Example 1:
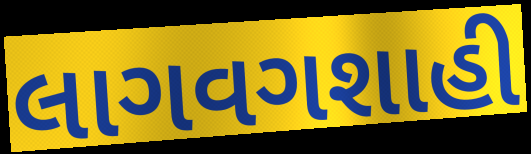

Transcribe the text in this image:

લાગવગશાહી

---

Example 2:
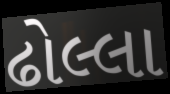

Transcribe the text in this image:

ઢોલ્લા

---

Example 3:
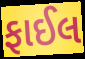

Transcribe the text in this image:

ફાઈલ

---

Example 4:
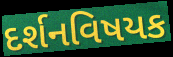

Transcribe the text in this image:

દર્શનવિષયક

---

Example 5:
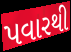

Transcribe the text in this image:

પવારથી